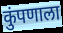
कुंपणाला